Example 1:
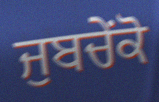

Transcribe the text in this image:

ਜੁਬਚੇਂਕੋ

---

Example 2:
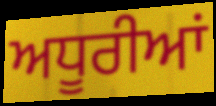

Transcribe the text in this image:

ਅਧੂਰੀਆਂ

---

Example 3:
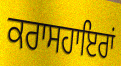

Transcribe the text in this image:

ਕਰਾਸਹਾਇਰਾਂ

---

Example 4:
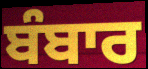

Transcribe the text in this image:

ਬੰਬਾਰ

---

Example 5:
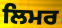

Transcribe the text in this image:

ਲਿਮਰ